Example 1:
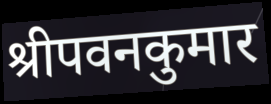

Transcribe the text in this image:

श्रीपवनकुमार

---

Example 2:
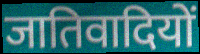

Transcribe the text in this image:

जातिवादियों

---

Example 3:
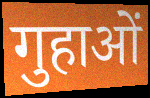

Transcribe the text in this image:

गुहाओं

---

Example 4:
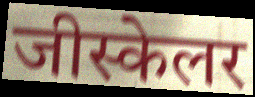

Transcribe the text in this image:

जीस्केलर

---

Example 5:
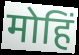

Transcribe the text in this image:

मोहिं